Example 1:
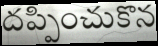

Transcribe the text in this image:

దప్పించుకొన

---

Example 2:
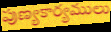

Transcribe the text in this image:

పుణ్యకార్యములు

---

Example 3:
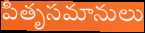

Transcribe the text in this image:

పితృసమానులు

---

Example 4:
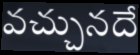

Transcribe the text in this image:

వచ్చునదే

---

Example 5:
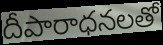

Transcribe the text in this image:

దీపారాధనలతో